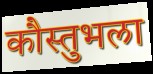
कौस्तुभला